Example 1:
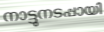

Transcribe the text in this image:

നാട്ടുനടപ്പായി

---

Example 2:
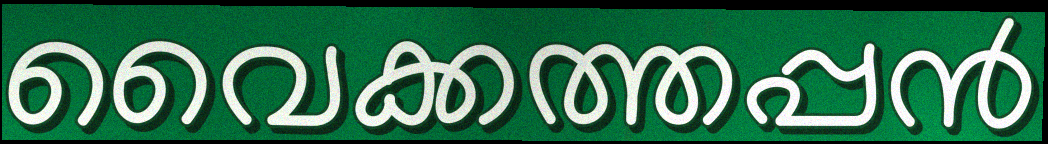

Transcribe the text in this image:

വൈക്കത്തപ്പൻ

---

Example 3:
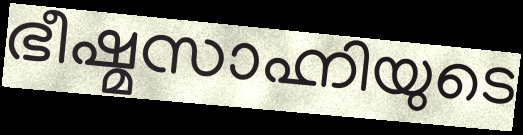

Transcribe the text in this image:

ഭീഷ്മസാഹ്നിയുടെ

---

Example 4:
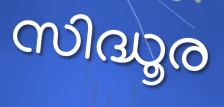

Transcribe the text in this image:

സിദ്ധൂര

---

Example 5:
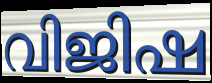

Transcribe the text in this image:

വിജിഷ